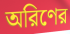
অরিণের